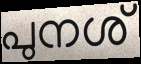
പുനശ്